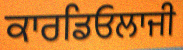
ਕਾਰਡਿਓਲਾਜੀ